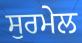
ਸੁਰਮੇਲ